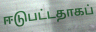
ஈடுபட்டதாகப்